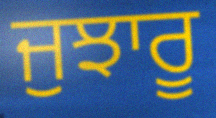
ਜੁਝਾਰੂ